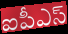
ఐపీఎస్